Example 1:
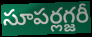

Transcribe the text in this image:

సూపర్లగ్జరీ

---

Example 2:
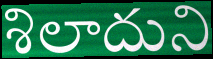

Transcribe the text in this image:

శిలాదుని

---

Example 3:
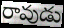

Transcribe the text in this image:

రావుడు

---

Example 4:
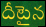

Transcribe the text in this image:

దీటైన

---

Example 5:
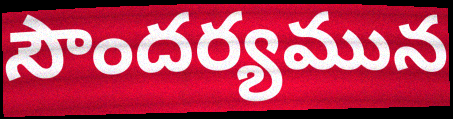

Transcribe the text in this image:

సౌందర్యమున